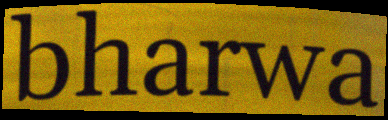
bharwa